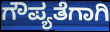
ಗೌಪ್ಯತೆಗಾಗಿ